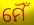
ମୈଁ